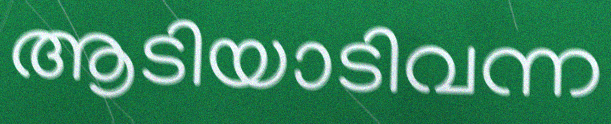
ആടിയാടിവന്ന